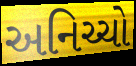
અનિચ્ચો